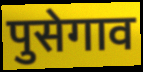
पुसेगाव